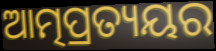
ଆତ୍ମପ୍ରତ୍ୟୟର